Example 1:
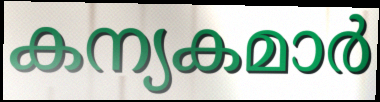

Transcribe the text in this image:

കന്യകമാർ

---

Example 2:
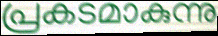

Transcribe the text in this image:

പ്രകടമാകുന്നു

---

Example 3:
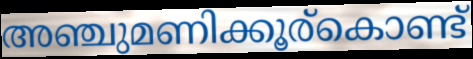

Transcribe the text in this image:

അഞ്ചുമണിക്കൂര്കൊണ്ട്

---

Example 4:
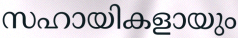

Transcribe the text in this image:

സഹായികളായും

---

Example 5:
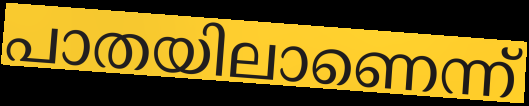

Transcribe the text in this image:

പാതയിലാണെന്ന്